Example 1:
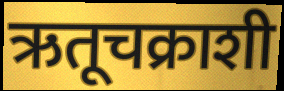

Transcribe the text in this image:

ऋतूचक्राशी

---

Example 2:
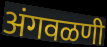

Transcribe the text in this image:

अंगवळणी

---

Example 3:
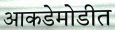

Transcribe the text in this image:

आकडेमोडीत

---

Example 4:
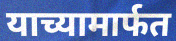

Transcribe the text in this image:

याच्यामार्फत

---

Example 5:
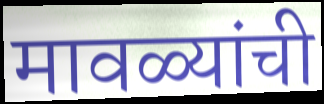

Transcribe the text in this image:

मावळ्यांची